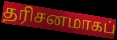
தரிசனமாகப்